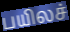
பயிலச்